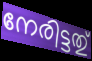
നേരിട്ടതു്